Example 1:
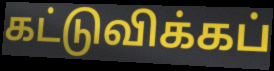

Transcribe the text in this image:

கட்டுவிக்கப்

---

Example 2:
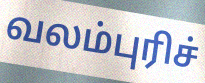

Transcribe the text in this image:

வலம்புரிச்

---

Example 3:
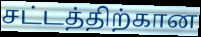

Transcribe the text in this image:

சட்டத்திற்கான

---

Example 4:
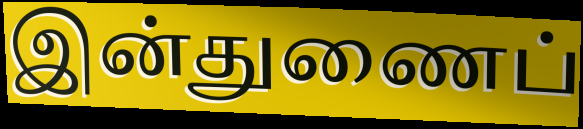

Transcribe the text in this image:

இன்துணைப்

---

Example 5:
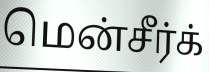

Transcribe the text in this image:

மென்சீர்க்